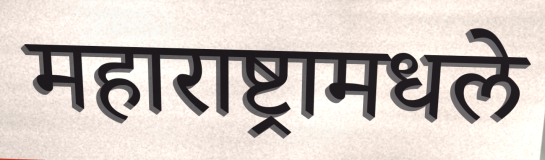
महाराष्ट्रामधले